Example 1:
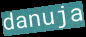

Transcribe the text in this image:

danuja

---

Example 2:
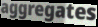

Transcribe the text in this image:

aggregates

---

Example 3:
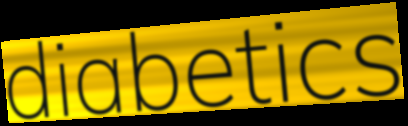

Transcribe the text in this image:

diabetics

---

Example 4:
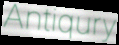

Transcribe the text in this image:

Antiqury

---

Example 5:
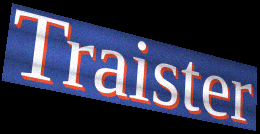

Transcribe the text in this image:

Traister